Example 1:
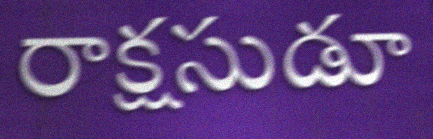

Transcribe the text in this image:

రాక్షసుడూ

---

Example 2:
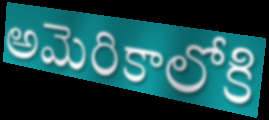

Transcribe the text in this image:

అమెరికాలోకి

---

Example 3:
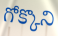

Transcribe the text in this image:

గోక్కొని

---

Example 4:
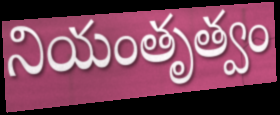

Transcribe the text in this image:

నియంతృత్వం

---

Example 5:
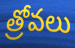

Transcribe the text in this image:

త్రోవలు